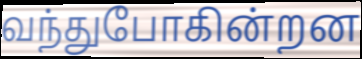
வந்துபோகின்றன